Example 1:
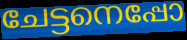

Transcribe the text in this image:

ചേട്ടനെപ്പോ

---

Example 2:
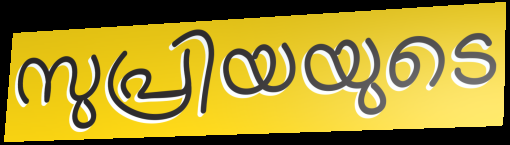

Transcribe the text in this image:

സുപ്രിയയുടെ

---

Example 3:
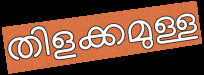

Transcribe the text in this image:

തിളക്കമുള്ള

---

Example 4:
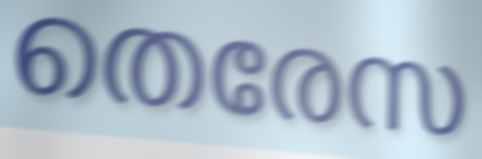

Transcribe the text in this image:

തെരേസ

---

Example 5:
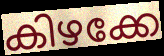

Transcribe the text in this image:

കിഴക്കേ